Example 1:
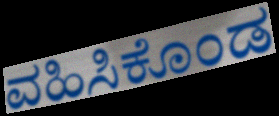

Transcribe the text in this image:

ವಹಿಸಿಕೊಂಡ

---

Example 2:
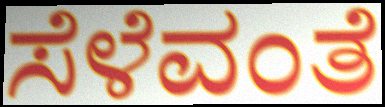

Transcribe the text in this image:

ಸೆಳೆವಂತೆ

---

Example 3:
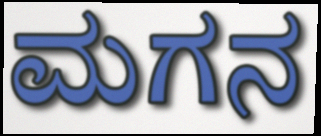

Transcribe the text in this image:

ಮಗನ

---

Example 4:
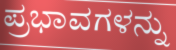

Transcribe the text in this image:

ಪ್ರಭಾವಗಳನ್ನು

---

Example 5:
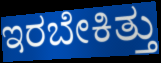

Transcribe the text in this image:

ಇರಬೇಕಿತ್ತು